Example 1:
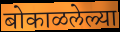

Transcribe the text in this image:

बोकाळलेल्या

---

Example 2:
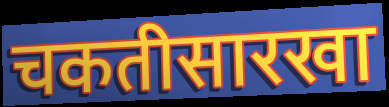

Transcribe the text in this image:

चकतीसारखा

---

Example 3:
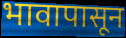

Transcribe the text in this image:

भावापासून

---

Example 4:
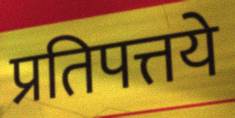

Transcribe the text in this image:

प्रतिपत्तये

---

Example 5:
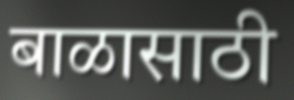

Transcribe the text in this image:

बाळासाठी